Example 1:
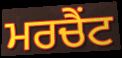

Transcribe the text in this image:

ਮਰਚੈਂਟ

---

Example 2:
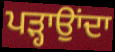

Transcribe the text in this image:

ਪੜ੍ਹਾਉਾਂਦਾ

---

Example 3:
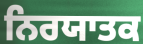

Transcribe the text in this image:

ਨਿਰਯਾਤਕ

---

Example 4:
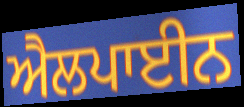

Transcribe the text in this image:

ਐਲਪਾਈਨ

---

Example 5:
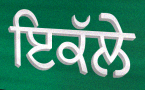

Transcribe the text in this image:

ਇਕੱਲੇ